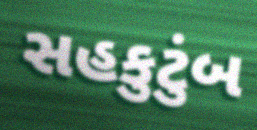
સહકુટુંબ